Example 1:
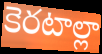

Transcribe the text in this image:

కెరటాల్లా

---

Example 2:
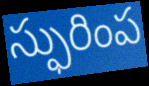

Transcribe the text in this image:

స్ఫురింప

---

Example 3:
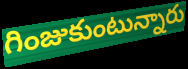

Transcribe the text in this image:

గింజుకుంటున్నారు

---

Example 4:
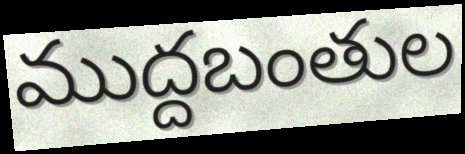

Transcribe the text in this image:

ముద్దబంతుల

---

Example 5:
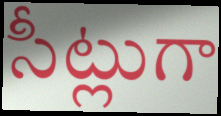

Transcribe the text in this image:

సీట్లుగా